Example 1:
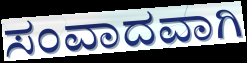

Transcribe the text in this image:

ಸಂವಾದವಾಗಿ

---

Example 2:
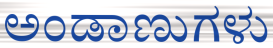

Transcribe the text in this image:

ಅಂಡಾಣುಗಳು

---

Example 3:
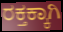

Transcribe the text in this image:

ರಕ್ತಕ್ಕಾಗಿ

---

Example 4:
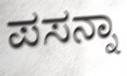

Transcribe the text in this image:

ಪಸನ್ನಾ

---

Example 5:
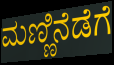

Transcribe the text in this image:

ಮಣ್ಣಿನೆಡೆಗೆ